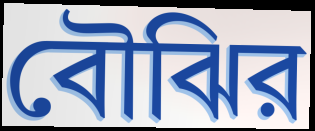
বৌঝির